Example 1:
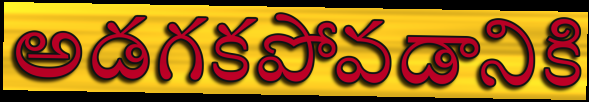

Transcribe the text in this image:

అడగకపోవడానికి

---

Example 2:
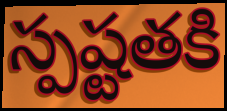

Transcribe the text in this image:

స్పష్టతకి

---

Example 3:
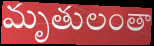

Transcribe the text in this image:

మృతులంతా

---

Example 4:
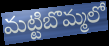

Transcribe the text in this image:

మట్టిబొమ్మలో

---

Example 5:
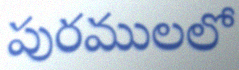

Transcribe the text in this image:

పురములలో